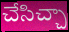
చేసిచ్చా